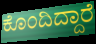
ಕೊಂದಿದ್ದಾರೆ